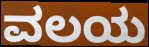
ವಲಯ